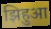
झिहुआ